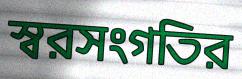
স্বরসংগতির